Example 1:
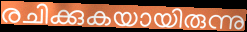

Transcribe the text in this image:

രചിക്കുകയായിരുന്നു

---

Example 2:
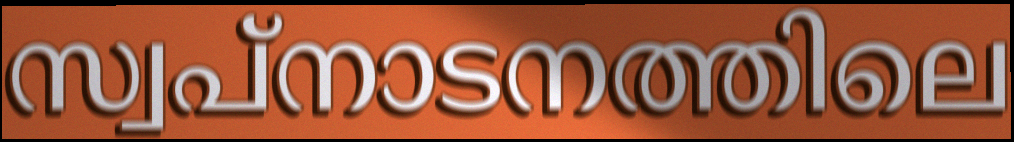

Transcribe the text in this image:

സ്വപ്നാടനത്തിലെ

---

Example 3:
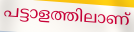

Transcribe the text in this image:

പട്ടാളത്തിലാണ്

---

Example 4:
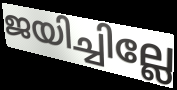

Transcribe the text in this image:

ജയിച്ചില്ലേ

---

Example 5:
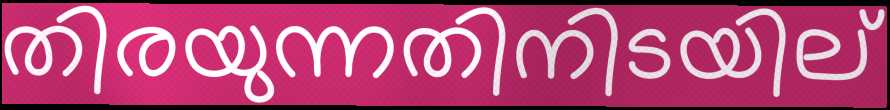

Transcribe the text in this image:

തിരയുന്നതിനിടയില്